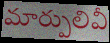
మార్పులివీ